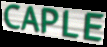
CAPLE